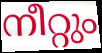
നീറ്റും